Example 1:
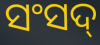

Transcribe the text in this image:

ସଂସଦ୍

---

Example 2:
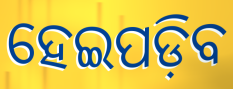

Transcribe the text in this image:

ହେଇପଡ଼ିବ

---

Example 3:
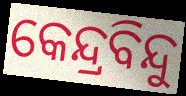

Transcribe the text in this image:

କେନ୍ଦ୍ରବିନ୍ଦୁ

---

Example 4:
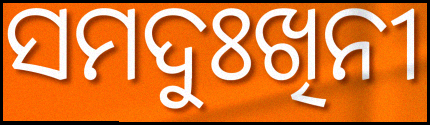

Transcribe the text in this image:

ସମଦୁଃଖିନୀ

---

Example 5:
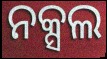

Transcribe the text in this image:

ନକ୍ସଲ